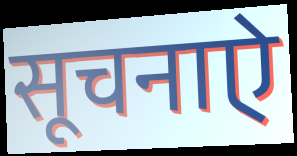
सूचनाऐ